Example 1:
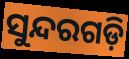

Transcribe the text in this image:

ସୁନ୍ଦରଗଡ଼ି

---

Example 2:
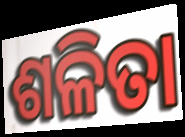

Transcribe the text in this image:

ଶଳିତା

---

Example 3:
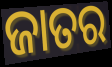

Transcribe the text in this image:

ଜାତର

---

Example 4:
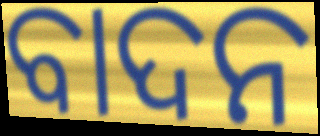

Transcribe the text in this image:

ବାଦନ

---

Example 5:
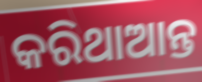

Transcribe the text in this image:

କରିଥାଆନ୍ତ